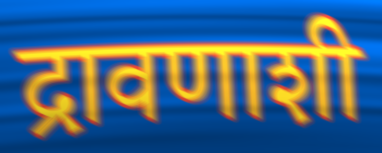
द्रावणाशी